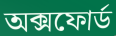
অক্সফোৰ্ড